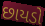
છાયડો